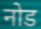
नोड